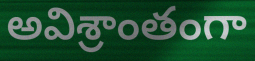
అవిశ్రాంతంగా